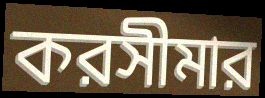
করসীমার